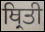
ਥ੍ਰਿਤੀ